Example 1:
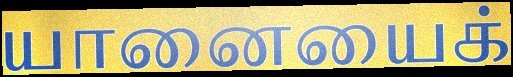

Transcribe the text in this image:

யானையைக்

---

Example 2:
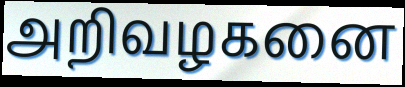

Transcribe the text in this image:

அறிவழகனை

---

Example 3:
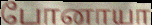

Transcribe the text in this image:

போனாயா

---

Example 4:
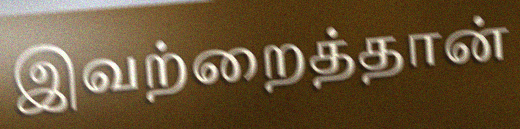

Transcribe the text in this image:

இவற்றைத்தான்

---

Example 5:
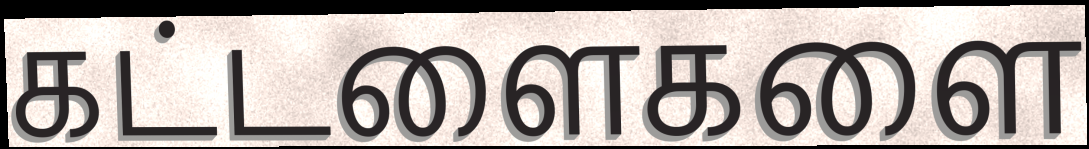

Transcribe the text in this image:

கட்டளைகளை